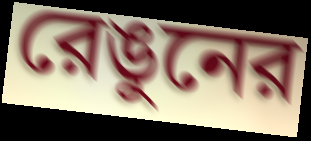
রেঙুনের